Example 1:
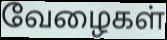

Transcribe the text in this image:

வேழைகள்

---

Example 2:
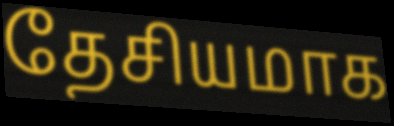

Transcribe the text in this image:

தேசியமாக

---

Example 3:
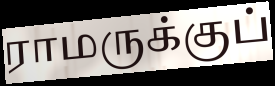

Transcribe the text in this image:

ராமருக்குப்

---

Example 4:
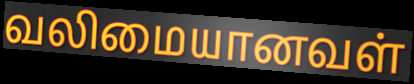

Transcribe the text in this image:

வலிமையானவள்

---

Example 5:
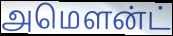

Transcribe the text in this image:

அமௌன்ட்